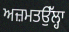
ਅਜ਼ਮਤਉੱਲ੍ਹਾ